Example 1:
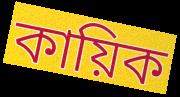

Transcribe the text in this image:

কায়িক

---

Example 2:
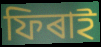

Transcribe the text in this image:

ফিৰাই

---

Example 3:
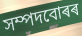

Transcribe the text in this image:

সম্পদবোৰৰ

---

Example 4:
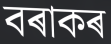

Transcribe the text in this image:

বৰাকৰ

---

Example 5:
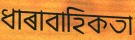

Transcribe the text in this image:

ধাৰাবাহিকতা